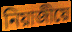
নিয়াজীয়ে